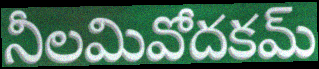
నీలమివోదకమ్